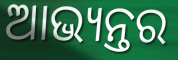
ଆଭ୍ୟନ୍ତର